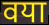
वया